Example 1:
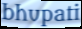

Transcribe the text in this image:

bhupati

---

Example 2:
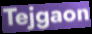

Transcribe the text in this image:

Tejgaon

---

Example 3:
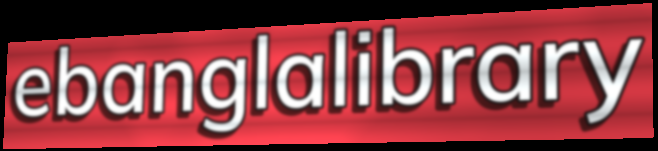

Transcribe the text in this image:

ebanglalibrary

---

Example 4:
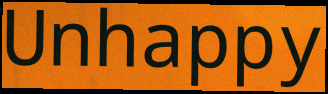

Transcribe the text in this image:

Unhappy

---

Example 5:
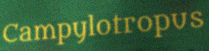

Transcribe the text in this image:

Campylotropus